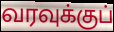
வரவுக்குப்